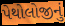
પેથોલોજીનું